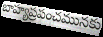
బాహ్యప్రపంచమునకు